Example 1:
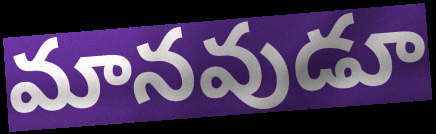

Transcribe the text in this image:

మానవుడూ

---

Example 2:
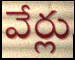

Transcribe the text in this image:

వేర్లు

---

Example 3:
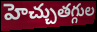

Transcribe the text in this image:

హెచ్చుతగ్గుల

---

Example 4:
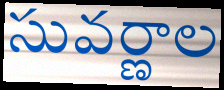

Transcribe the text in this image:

సువర్ణాల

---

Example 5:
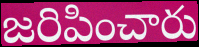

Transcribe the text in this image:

జరిపించారు